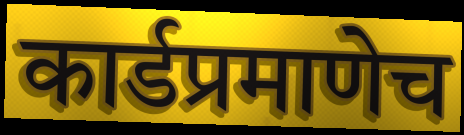
कार्डप्रमाणेच